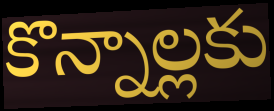
కొన్నాల్లకు